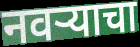
नवऱ्याचा